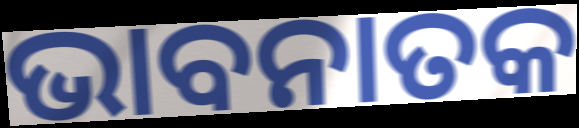
ଭାବନାତକ